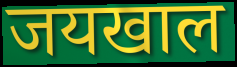
जयखाल